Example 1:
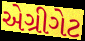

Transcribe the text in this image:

એગ્રીગેટ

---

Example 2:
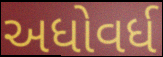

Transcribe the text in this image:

અધોવર્ધ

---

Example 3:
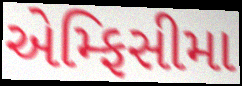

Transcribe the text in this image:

એમ્ફિસીમા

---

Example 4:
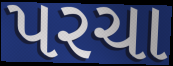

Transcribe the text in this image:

પરચા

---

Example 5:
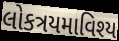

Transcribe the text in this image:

લોકત્રયમાવિશ્ય